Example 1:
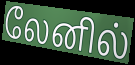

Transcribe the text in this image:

லேனில்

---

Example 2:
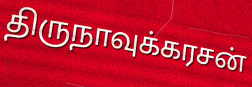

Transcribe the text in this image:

திருநாவுக்கரசன்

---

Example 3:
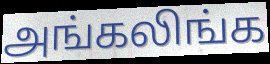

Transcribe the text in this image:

அங்கலிங்க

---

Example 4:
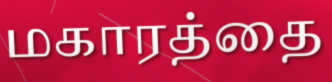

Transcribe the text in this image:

மகாரத்தை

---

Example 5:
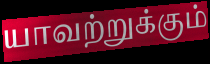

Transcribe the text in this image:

யாவற்றுக்கும்